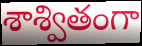
శాశ్వితంగా